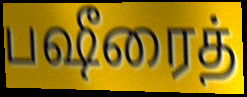
பஷீரைத்